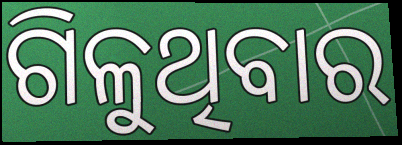
ଗିଳୁଥିବାର